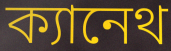
ক্যানেথ